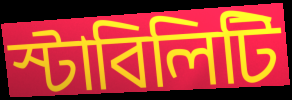
স্টাবিলিটি